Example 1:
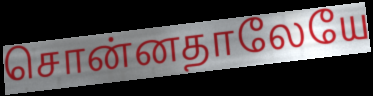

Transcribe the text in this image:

சொன்னதாலேயே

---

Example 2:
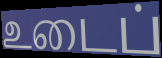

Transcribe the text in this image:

உடைப்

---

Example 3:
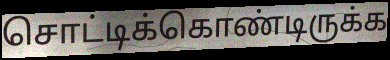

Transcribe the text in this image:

சொட்டிக்கொண்டிருக்க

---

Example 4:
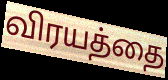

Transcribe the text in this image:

விரயத்தை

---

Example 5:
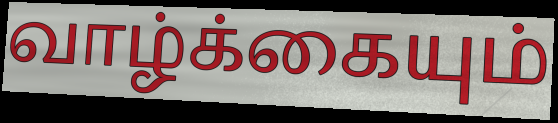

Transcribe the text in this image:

வாழ்க்கையும்